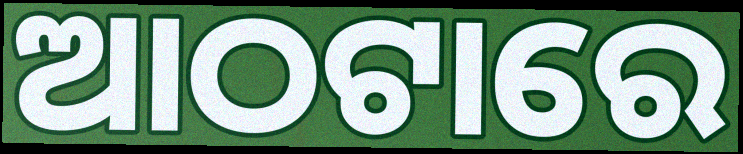
ଆଠଟାରେ